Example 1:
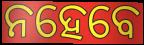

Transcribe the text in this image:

ନହେବେ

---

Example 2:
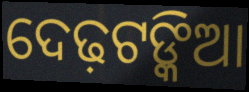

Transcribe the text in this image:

ଦେଢ଼ଟଙ୍କିଆ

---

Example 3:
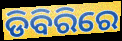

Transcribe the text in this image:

ଡିବିରିରେ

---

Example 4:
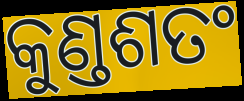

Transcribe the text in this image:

କୁଣ୍ଡଶତଂ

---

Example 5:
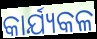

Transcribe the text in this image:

କାର୍ଯ୍ୟକଳ